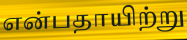
என்பதாயிற்று